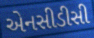
એનસીડીસી